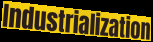
Industrialization